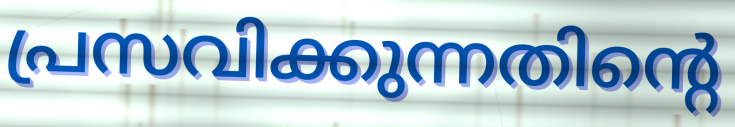
പ്രസവിക്കുന്നതിന്റെ